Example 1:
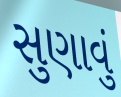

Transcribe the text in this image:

સુણાવું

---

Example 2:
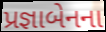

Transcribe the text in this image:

પ્રજ્ઞાબેનના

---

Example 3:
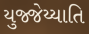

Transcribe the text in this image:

યુજ્જેય્યાતિ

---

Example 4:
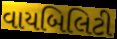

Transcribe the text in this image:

વાયબિલિટી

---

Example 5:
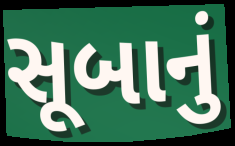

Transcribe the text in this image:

સૂબાનું